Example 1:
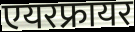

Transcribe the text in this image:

एयरफ्रायर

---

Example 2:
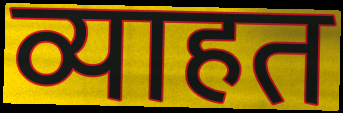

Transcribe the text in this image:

व्याहत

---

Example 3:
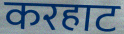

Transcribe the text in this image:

करहाट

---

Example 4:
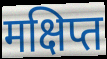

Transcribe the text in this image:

मक्षिप्त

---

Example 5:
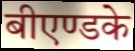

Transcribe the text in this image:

बीएण्डके